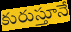
కురుస్తూనే